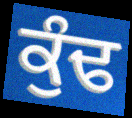
ਕੁੰਢ